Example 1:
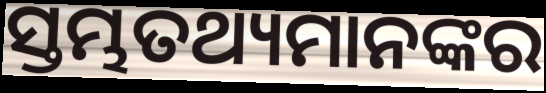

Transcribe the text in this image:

ସ୍ତମ୍ଭତଥ୍ୟମାନଙ୍କର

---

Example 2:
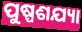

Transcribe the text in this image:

ପୁଷ୍ପଶଯ୍ୟା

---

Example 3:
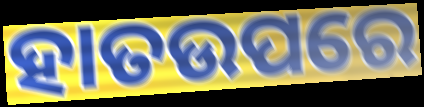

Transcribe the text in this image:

ହାତଉପରେ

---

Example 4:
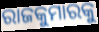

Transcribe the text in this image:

ରାଜକୁମାରକୁ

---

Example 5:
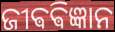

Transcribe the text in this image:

ଜୀଵଵିଜ୍ଞାନ